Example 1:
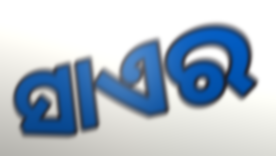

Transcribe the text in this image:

ସାଏର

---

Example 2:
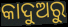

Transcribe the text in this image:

କାଦୁଅରୁ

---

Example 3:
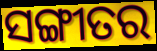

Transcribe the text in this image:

ସଙ୍ଗୀତର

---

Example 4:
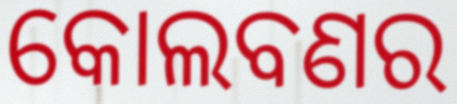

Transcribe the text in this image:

କୋଲବଣର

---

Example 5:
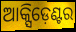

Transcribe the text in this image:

ଆକ୍ସିଡ଼େଣ୍ଟର